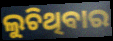
ଲୁଚିଥିବାର